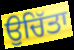
ਉਚਿੱਤਾ